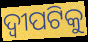
ଦ୍ୱୀପଟିକୁ